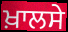
ਖ਼ਾਲਸੇ